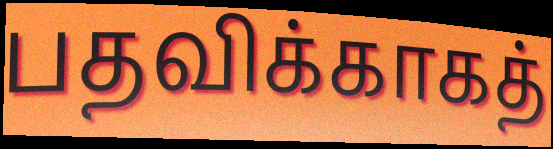
பதவிக்காகத்